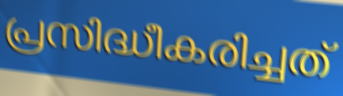
പ്രസിദ്ധീകരിച്ചത്